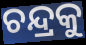
ଚନ୍ଦ୍ରକୁ